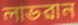
লাভৱান